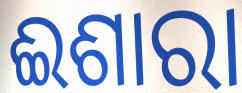
ଈଶାରା